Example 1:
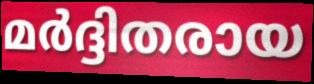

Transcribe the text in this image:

മർദ്ദിതരായ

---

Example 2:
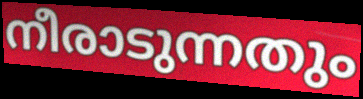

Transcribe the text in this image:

നീരാടുന്നതും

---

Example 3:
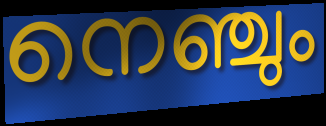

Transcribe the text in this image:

നെഞ്ചും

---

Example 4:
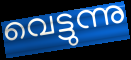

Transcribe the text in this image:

വെട്ടുന്നു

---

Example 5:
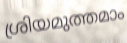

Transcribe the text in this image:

ശ്രിയമുത്തമാം